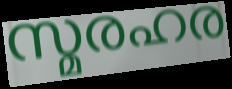
സ്മരഹര